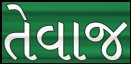
તેવાજ